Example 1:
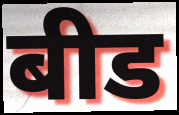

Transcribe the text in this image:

बीड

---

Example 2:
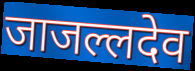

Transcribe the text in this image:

जाजल्लदेव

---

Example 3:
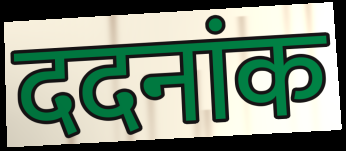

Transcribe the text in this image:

ददनांक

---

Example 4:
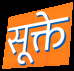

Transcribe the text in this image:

सूक्ते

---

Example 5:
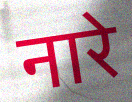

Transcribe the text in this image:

नारे